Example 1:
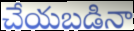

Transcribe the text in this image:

చేయబడినా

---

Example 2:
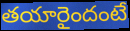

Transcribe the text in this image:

తయారైందంటే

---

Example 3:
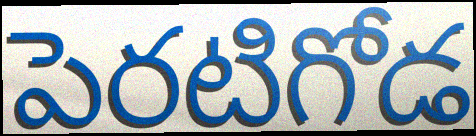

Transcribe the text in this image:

పెరటిగోడ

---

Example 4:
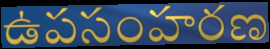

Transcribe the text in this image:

ఉపసంహరణ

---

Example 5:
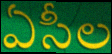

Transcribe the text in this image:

ఏసీల